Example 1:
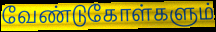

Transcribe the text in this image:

வேண்டுகோள்களும்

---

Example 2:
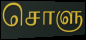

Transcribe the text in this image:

சொளு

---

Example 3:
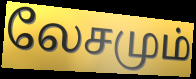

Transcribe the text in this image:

லேசமும்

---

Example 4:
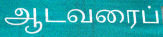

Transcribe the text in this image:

ஆடவரைப்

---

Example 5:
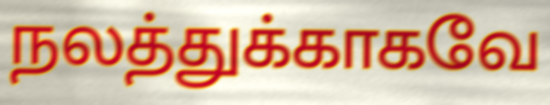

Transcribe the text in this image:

நலத்துக்காகவே